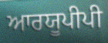
ਆਰਯੂਪੀਪੀ